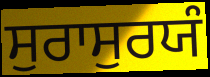
ਸੁਰਾਸੁਰਯੰ